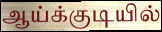
ஆய்க்குடியில்